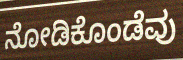
ನೋಡಿಕೊಂಡೆವು